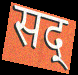
सद्